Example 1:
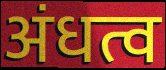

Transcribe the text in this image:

अंधत्व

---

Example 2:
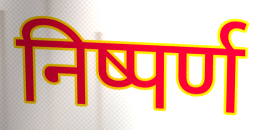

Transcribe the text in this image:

निष्पर्ण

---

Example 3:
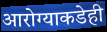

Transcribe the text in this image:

आरोग्याकडेही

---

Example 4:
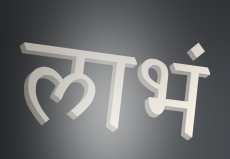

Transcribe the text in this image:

लाभं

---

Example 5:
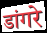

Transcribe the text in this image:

डांगरे